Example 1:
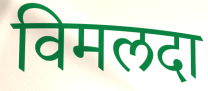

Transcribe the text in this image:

विमलदा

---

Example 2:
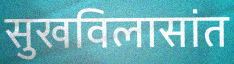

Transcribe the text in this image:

सुखविलासांत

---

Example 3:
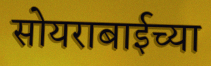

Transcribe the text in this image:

सोयराबाईच्या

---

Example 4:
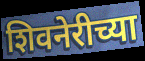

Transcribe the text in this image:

शिवनेरीच्या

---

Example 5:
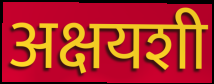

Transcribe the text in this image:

अक्षयशी